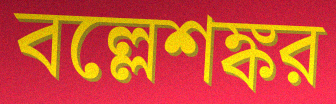
বল্লেশঙ্কর